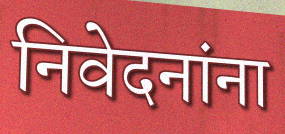
निवेदनांना